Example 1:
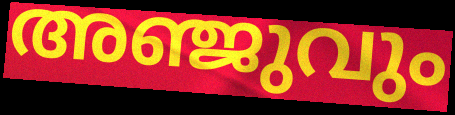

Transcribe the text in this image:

അഞ്ജുവും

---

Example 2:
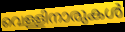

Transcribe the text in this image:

വെള്ളിനാരുകൾ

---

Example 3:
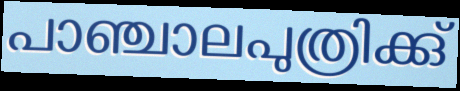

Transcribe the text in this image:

പാഞ്ചാലപുത്രിക്കു്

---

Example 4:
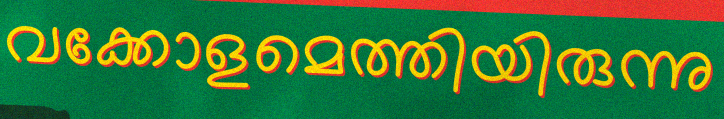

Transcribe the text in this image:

വക്കോളമെത്തിയിരുന്നു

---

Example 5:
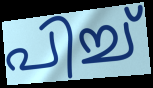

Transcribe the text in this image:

പിച്ച്